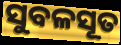
ସୁବଳସୂତ